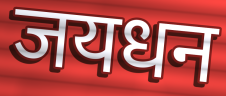
जयधन